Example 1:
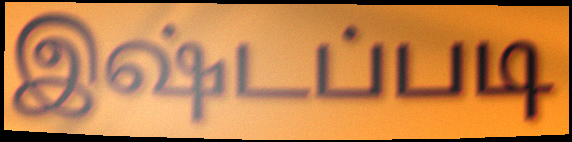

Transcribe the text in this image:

இஷ்டப்படி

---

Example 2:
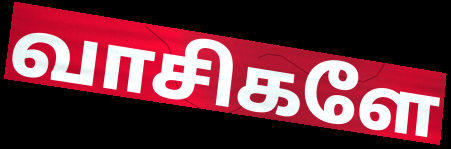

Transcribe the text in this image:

வாசிகளே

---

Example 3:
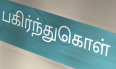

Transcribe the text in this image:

பகிர்ந்துகொள்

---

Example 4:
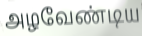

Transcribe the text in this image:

அழவேண்டிய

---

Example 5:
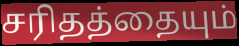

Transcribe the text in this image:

சரிதத்தையும்